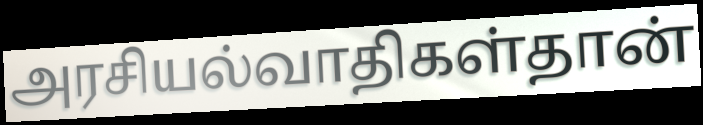
அரசியல்வாதிகள்தான்